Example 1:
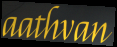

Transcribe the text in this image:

aathvan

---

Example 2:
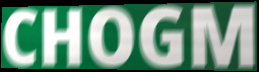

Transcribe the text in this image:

CHOGM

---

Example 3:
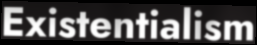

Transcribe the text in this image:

Existentialism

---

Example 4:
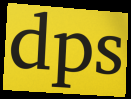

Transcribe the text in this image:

dps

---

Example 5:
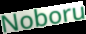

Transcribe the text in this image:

Noboru